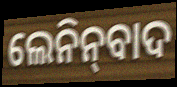
ଲେନିନ୍‌ବାଦ